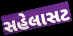
સહેલાસટ